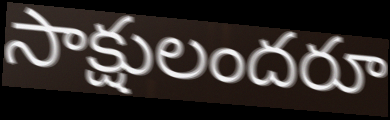
సాక్షులందరూ